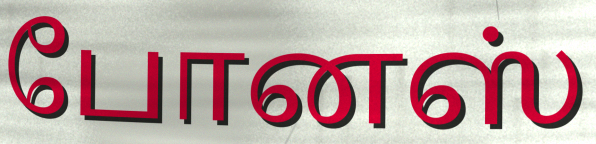
போனஸ்